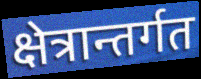
क्षेत्रान्तर्गत